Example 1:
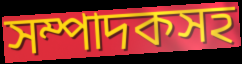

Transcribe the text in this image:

সম্পাদকসহ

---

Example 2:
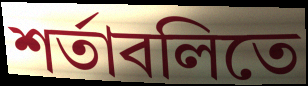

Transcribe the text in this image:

শর্তাবলিতে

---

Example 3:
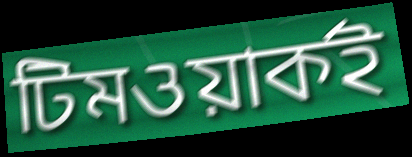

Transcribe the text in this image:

টিমওয়ার্কই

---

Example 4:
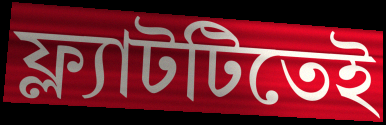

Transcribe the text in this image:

ফ্ল্যাটটিতেই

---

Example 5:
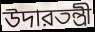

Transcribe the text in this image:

উদারতন্ত্রী